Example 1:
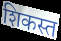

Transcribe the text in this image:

शिकस्त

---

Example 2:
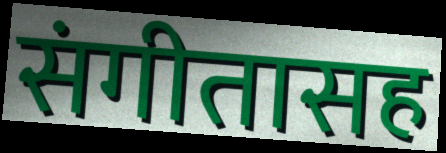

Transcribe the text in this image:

संगीतासह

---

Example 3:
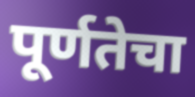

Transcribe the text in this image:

पूर्णतेचा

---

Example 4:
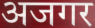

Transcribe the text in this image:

अजगर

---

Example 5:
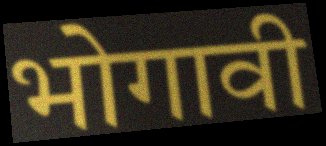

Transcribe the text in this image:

भोगावी